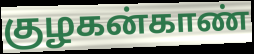
குழகன்காண்